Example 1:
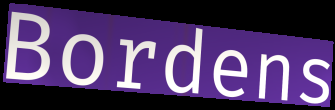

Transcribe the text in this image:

Bordens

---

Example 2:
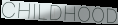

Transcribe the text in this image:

CHILDHOOD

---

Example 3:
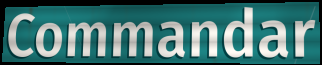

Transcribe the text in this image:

Commandar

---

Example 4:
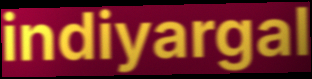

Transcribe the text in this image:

indiyargal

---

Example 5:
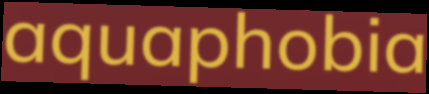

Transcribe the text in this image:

aquaphobia